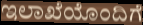
ಇಲಾಖೆಯೊಂದಿಗೆ